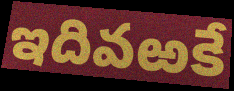
ఇదివఱకే